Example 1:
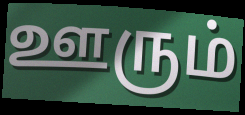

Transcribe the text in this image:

ஊரும்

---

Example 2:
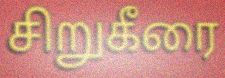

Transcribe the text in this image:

சிறுகீரை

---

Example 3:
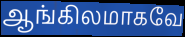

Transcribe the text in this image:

ஆங்கிலமாகவே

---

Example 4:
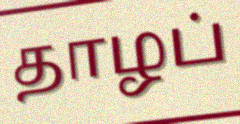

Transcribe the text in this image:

தாழப்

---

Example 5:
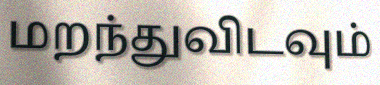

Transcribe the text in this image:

மறந்துவிடவும்